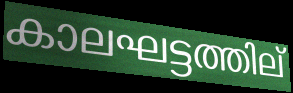
കാലഘട്ടത്തില്